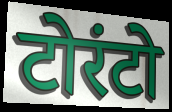
टोरंटो